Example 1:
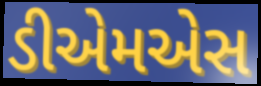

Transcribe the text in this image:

ડીએમએસ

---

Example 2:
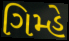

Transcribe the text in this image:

ગિમ્હે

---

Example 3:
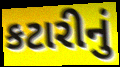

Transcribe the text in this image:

કટારીનું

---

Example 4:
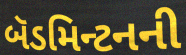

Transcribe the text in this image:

બૅડમિન્ટનની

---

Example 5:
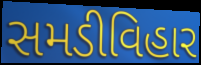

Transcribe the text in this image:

સમડીવિહાર